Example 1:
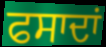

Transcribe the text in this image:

ਫਸਾਦਾਂ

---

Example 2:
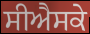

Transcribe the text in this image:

ਸੀਐਸਕੇ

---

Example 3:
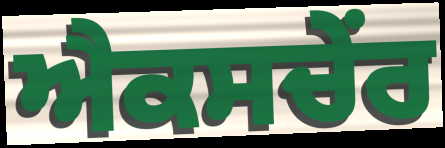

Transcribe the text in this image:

ਐਕਸਚੇਂਰ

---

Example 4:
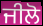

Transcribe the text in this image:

ਜੀਲੋ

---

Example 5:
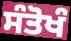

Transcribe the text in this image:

ਸੰਤੋਖੰ